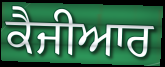
ਕੈਜੀਆਰ